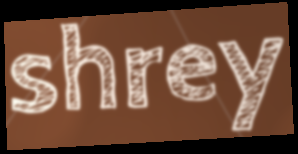
shrey